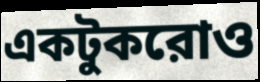
একটুকরোও